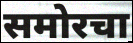
समोरचा